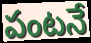
పంటనే